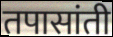
तपासांती